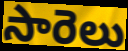
సారెలు